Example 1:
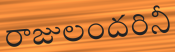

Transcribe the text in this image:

రాజులందరినీ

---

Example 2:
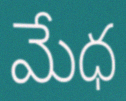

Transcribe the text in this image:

మేధ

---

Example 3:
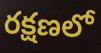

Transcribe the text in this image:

రక్షణలో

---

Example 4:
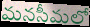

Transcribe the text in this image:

మనసీమలో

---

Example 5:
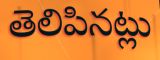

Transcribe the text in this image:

తెలిపినట్లు